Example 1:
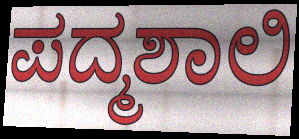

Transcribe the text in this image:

ಪದ್ಮಶಾಲಿ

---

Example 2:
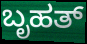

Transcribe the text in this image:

ಬೃಹತ್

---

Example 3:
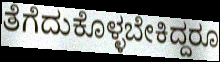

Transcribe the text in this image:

ತೆಗೆದುಕೊಳ್ಳಬೇಕಿದ್ದರೂ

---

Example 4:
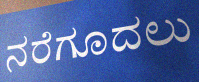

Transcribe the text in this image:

ನರೆಗೂದಲು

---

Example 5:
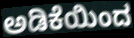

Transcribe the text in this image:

ಅಡಿಕೆಯಿಂದ